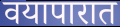
वयापारात